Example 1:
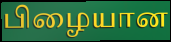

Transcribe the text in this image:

பிழையான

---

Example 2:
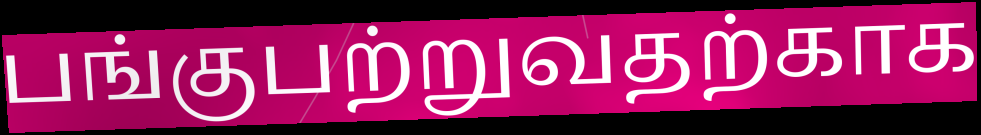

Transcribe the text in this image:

பங்குபற்றுவதற்காக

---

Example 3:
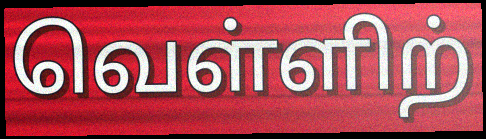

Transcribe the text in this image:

வெள்ளிற்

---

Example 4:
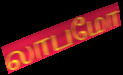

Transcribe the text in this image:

லாபமோ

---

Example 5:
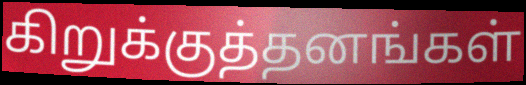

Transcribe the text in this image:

கிறுக்குத்தனங்கள்